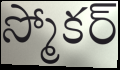
స్మోకర్